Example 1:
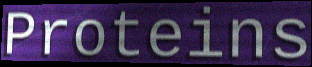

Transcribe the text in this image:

Proteins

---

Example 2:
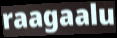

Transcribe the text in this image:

raagaalu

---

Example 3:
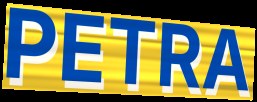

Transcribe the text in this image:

PETRA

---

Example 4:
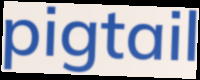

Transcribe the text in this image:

pigtail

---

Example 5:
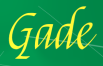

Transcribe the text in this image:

Gade